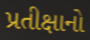
પ્રતીક્ષાનો